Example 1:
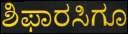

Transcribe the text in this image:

ಶಿಫಾರಸಿಗೂ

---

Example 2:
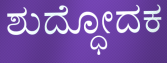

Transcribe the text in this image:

ಶುದ್ಧೋದಕ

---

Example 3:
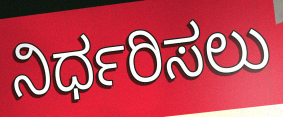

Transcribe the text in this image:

ನಿರ್ಧರಿಸಲು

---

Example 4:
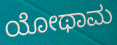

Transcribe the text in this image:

ಯೋಥಾಮ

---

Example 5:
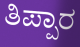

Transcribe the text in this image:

ತಿಪ್ಪಾರ